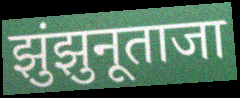
झुंझुनूताजा